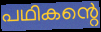
പഥികന്റെ